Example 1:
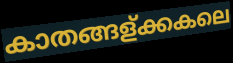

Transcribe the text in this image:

കാതങ്ങള്ക്കകലെ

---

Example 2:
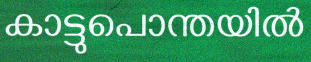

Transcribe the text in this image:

കാട്ടുപൊന്തയിൽ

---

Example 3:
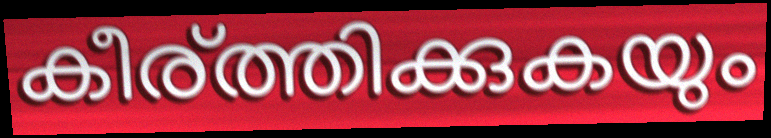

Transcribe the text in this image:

കീര്ത്തിക്കുകയും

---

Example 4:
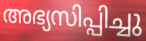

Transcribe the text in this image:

അഭ്യസിപ്പിച്ചു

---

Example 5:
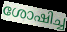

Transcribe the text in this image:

ശോഷിച്ച